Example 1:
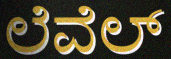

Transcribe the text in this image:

ಲೆವೆಲ್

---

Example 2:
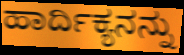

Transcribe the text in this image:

ಹಾರ್ದಿಕ್ಯನನ್ನು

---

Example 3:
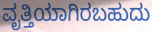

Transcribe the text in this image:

ವೃತ್ತಿಯಾಗಿರಬಹುದು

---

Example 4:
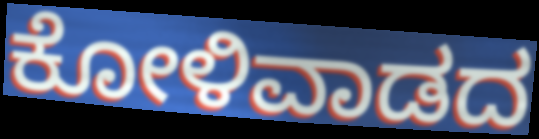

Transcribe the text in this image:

ಕೋಳಿವಾಡದ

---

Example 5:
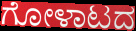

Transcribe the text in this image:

ಗೋಳಾಟದ